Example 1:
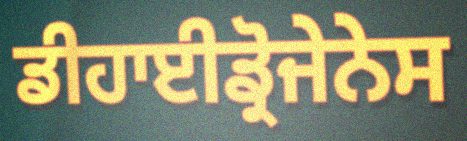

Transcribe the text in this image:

ਡੀਹਾਈਡ੍ਰੋਜੇਨੇਸ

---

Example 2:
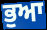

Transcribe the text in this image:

ਭੁਆ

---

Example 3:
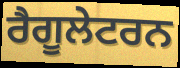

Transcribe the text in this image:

ਰੈਗੂਲੇਟਰਨ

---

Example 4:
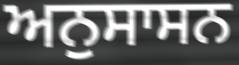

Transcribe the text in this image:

ਅਨੁਸਾਸਨ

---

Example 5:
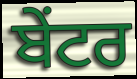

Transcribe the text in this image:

ਬੇਂਟਰ